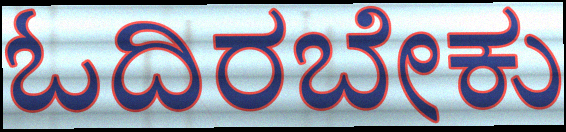
ಓದಿರಬೇಕು